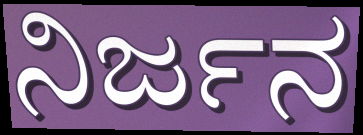
ನಿರ್ಜನ